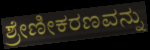
ಶ್ರೇಣೀಕರಣವನ್ನು